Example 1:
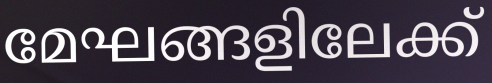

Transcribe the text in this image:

മേഘങ്ങളിലേക്ക്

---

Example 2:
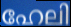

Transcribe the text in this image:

ഹേലി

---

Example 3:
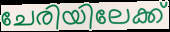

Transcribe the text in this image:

ചേരിയിലേക്ക്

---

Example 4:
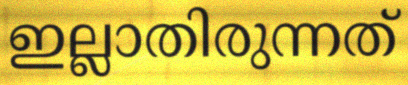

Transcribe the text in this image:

ഇല്ലാതിരുന്നത്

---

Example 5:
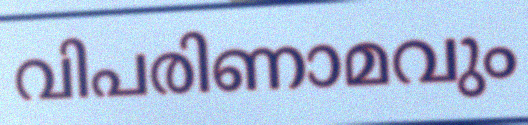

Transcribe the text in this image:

വിപരിണാമവും